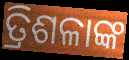
ତ୍ରିଶଳାଙ୍କ